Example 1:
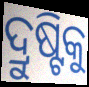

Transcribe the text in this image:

ଦ୍ରୁଷ୍ଟିକୁ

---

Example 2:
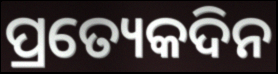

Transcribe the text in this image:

ପ୍ରତ୍ୟେକଦିନ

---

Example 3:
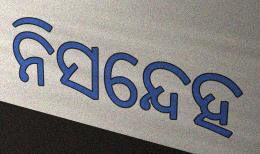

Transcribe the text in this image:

ନିସନ୍ଦେହ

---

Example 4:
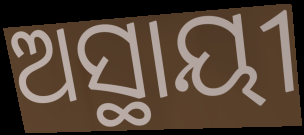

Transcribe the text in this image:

ଅସ୍ଥାୟୀ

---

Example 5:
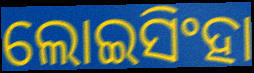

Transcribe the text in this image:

ଲୋଇସିଂହା